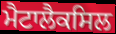
ਮੈਟਾਲੈਕਸਿਲ